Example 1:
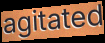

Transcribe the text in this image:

agitated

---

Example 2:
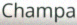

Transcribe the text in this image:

Champa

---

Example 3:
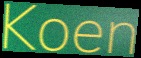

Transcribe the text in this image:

Koen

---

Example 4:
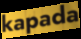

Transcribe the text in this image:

kapada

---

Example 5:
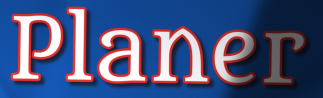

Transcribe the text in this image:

Planer